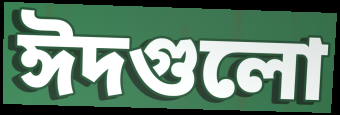
ঈদগুলো